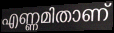
എണ്ണമിതാണ്